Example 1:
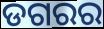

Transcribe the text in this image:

ଡଗରର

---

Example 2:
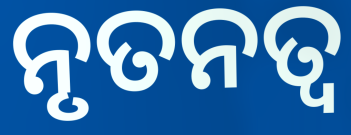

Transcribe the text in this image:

ନୃତନତ୍ୱ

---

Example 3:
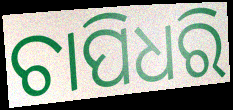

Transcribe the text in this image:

ଚାପିଧରି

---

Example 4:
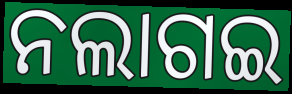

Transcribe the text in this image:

ନଲାଗଇ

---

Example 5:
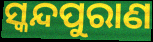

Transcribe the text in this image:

ସ୍କନ୍ଦପୁରାଣ